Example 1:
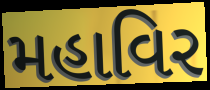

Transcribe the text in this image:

મહાવિર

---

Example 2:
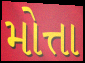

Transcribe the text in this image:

મોત્તા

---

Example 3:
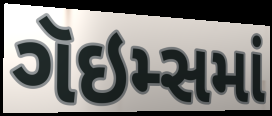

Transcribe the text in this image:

ગૅઇમ્સમાં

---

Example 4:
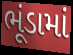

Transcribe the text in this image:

ભૂંડામાં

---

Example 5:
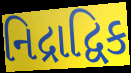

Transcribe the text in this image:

નિદ્રાદ્વિક